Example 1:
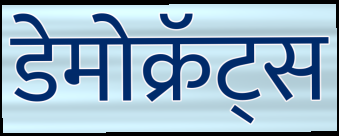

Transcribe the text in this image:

डेमोक्रॅट्स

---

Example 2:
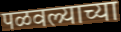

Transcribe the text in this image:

पळवल्याच्या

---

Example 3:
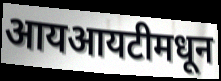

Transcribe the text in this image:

आयआयटीमधून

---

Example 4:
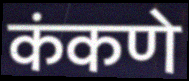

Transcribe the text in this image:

कंकणे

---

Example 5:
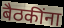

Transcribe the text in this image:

बैठकींना